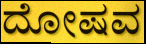
ದೋಷವ